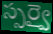
స్సర్వై